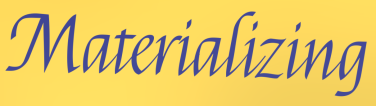
Materializing